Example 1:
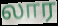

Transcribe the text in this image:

லார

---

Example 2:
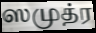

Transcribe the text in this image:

ஸமுத்ர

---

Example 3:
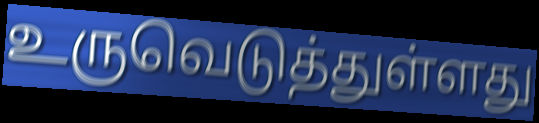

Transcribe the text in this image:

உருவெடுத்துள்ளது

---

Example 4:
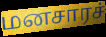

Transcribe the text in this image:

மனசாரச்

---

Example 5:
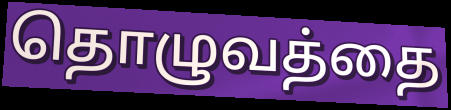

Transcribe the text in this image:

தொழுவத்தை